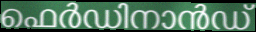
ഫെർഡിനാൻഡ്